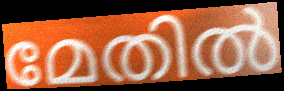
മേതിൽ